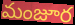
మంజూర